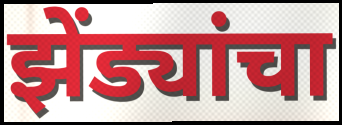
झेंड्यांचा